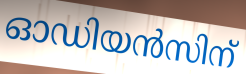
ഓഡിയൻസിന്